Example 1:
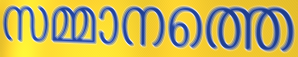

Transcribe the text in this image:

സമ്മാനത്തെ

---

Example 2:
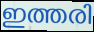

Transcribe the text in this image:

ഇത്തരി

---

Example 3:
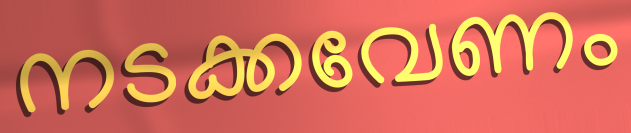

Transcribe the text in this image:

നടക്കവേണം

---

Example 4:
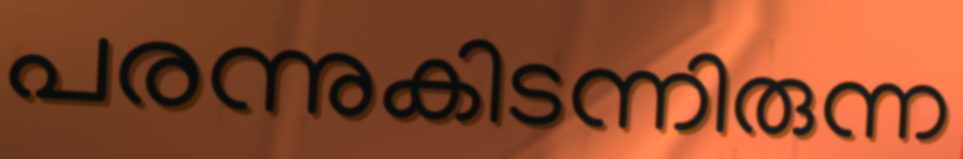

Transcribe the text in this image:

പരന്നുകിടന്നിരുന്ന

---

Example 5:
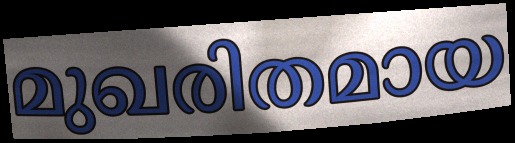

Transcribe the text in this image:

മുഖരിതമായ